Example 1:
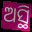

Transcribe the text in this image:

ଅସ୍ଥି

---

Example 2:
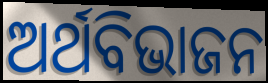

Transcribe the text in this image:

ଅର୍ଥବିଭାଜନ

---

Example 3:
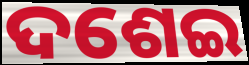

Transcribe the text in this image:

ଦଶେଇ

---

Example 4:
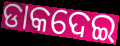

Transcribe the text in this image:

ଡାକଦେଇ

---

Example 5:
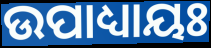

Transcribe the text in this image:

ଉପାଧ୍ୟାୟଃ